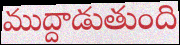
ముద్దాడుతుంది